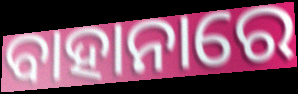
ବାହାନାରେ